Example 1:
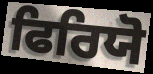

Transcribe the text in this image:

ਫਿਰਿਯੋ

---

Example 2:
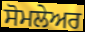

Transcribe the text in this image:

ਸੋਮਲੇਅਰ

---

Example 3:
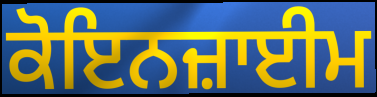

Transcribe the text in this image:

ਕੋਇਨਜ਼ਾਈਮ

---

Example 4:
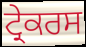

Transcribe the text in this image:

ਟ੍ਰੇਕਰਸ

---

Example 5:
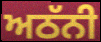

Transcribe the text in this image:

ਅਠੱਨੀ